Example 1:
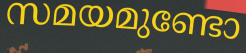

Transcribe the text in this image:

സമയമുണ്ടോ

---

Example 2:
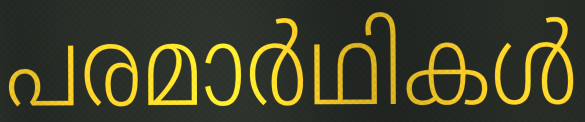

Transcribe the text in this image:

പരമാർഥികൾ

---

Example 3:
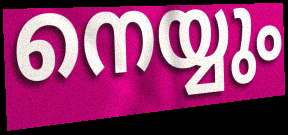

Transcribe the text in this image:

നെയ്യും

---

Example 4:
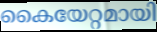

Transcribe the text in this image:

കൈയേറ്റമായി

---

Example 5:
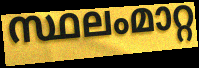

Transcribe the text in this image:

സ്ഥലംമാറ്റ